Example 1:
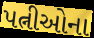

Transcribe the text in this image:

પત્નીઓના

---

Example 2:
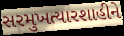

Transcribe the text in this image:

સરમુખત્યારશાહીને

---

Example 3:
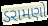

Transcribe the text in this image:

ડરામણો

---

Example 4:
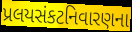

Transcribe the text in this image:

પ્રલયસંકટનિવારણના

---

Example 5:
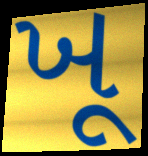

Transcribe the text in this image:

ખૂ